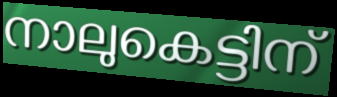
നാലുകെട്ടിന്